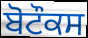
ਬੋਟੌਕਸ